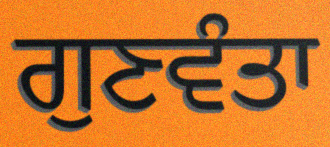
ਗੁਣਵੰਤਾ